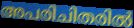
അപരിചിതരിൽ